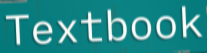
Textbook